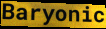
Baryonic